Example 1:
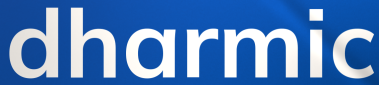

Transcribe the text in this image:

dharmic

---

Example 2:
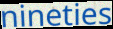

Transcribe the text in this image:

nineties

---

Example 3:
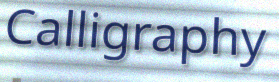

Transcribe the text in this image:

Calligraphy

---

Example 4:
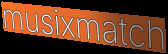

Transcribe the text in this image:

musixmatch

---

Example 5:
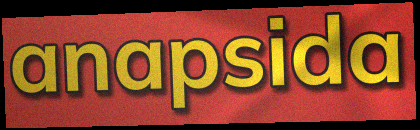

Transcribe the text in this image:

anapsida